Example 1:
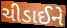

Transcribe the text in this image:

ચીડાઈને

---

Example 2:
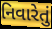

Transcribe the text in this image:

નિવારેતું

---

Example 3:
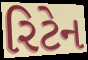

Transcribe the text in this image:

રિટેન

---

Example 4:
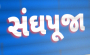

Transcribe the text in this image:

સંઘપૂજા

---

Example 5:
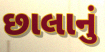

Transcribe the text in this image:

છાલાનું